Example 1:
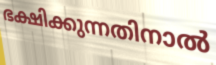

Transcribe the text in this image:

ഭക്ഷിക്കുന്നതിനാൽ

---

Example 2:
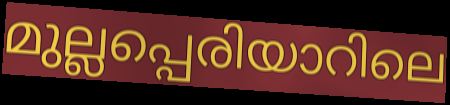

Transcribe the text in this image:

മുല്ലപ്പെരിയാറിലെ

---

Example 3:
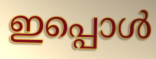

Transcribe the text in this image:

ഇപ്പൊൾ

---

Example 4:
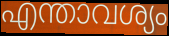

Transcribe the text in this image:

എന്താവശ്യം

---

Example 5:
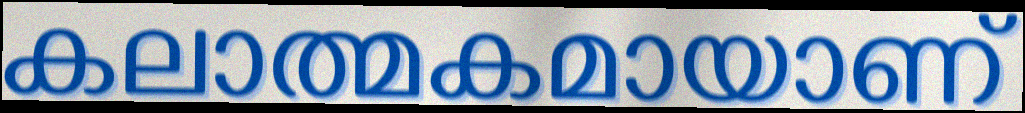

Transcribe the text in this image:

കലാത്മകമായാണ്